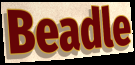
Beadle